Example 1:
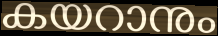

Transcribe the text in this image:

കയറാനും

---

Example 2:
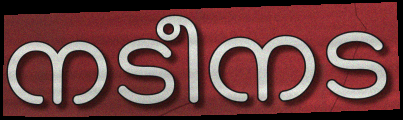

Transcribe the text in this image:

നടീനട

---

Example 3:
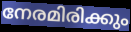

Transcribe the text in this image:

നേരമിരിക്കും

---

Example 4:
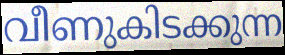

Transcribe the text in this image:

വീണുകിടക്കുന്ന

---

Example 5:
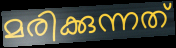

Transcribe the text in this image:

മരിക്കുന്നത്